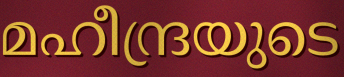
മഹീന്ദ്രയുടെ